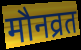
मौनव्रत